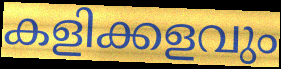
കളിക്കളവും